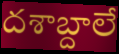
దశాబ్దాలే